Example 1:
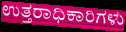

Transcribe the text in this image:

ಉತ್ತರಾಧಿಕಾರಿಗಳು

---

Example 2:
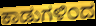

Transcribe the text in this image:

ಕಾಡುಗಳಿಂದ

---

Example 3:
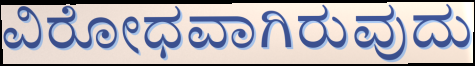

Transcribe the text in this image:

ವಿರೋಧವಾಗಿರುವುದು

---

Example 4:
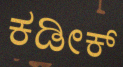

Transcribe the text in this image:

ಕಡೀಕ್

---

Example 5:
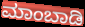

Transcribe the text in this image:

ಮಾಂಬಾಡಿ